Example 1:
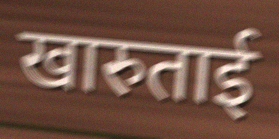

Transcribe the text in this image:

खारुताई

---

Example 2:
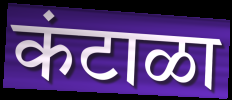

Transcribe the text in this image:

कंटाळा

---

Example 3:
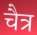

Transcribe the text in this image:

चैत्र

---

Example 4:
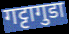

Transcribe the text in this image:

गट्टागुडा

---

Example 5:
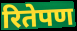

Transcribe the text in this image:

रितेपण